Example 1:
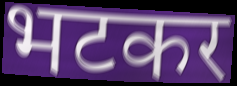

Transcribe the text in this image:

भटकर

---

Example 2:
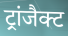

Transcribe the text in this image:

ट्रांजैक्ट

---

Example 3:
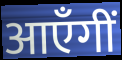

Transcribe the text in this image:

आएँगीं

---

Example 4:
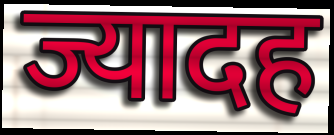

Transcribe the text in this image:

ज्यादह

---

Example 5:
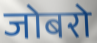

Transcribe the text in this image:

जोबरो